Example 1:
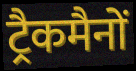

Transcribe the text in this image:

ट्रैकमैनों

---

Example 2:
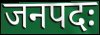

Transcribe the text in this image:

जनपदः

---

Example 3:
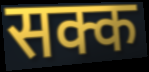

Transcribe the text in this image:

सक्क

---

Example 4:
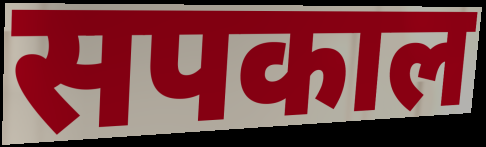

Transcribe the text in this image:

सपकाल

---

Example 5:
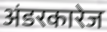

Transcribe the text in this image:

अंडरकारेज